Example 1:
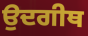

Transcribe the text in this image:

ਉਦਗੀਥ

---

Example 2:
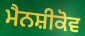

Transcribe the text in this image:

ਮੈਨਸ਼ੀਕੋਵ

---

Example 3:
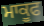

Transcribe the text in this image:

ਮਾਕੂਫ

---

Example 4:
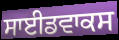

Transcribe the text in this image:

ਸਾਈਡਵਾਕਸ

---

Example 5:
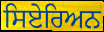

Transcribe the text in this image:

ਸਿਏਰਿਅਨ